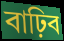
বাঢ়িব